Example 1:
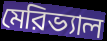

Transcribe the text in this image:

মেরিভ্যাল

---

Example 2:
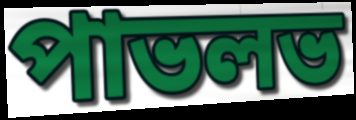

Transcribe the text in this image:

পাভলভ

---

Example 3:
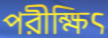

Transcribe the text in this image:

পরীক্ষিৎ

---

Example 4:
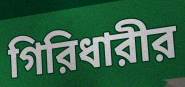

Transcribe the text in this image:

গিরিধারীর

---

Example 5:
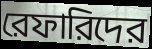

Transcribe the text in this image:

রেফারিদের